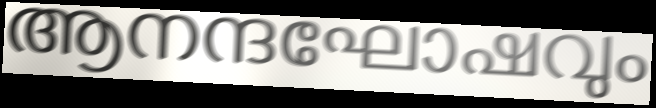
ആനന്ദഘോഷവും